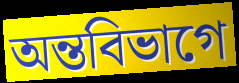
অন্তবিভাগে